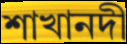
শাখানদী